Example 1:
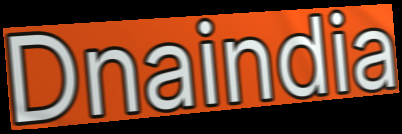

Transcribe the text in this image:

Dnaindia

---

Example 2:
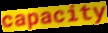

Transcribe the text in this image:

capacity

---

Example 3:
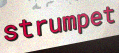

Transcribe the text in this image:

strumpet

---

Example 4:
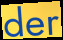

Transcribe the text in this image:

der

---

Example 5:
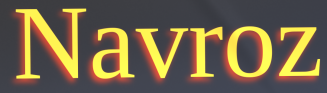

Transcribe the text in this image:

Navroz